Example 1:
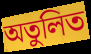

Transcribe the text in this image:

অতুলিত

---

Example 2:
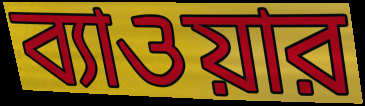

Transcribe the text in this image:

ব্যাওয়ার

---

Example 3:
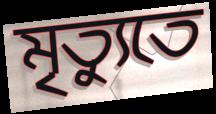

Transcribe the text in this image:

মৃত্যুতে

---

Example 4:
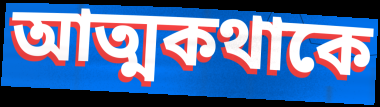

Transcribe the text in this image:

আত্মকথাকে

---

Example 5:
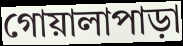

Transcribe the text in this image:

গোয়ালাপাড়া